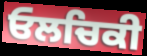
ਓਲਚਿਕੀ